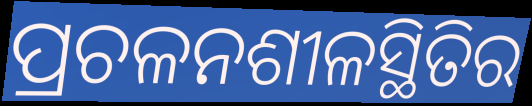
ପ୍ରଚଳନଶୀଳସ୍ଥିତିର